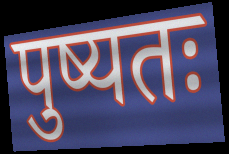
पुष्यतः